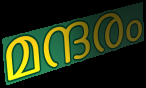
മന്ദരം